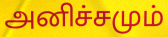
அனிச்சமும்